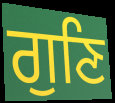
ਗੁਣਿ